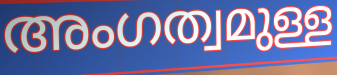
അംഗത്വമുള്ള